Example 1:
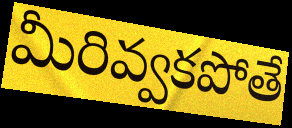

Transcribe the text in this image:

మీరివ్వకపోతే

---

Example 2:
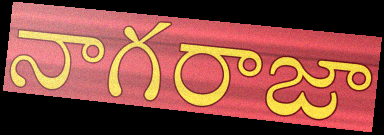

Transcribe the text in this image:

నాగరాజా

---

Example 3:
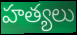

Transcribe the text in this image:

హత్యలు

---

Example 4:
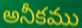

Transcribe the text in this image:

అనీకము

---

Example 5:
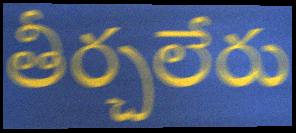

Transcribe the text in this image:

తీర్చలేరు